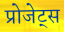
प्रोजेट्स